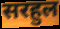
सरहुल